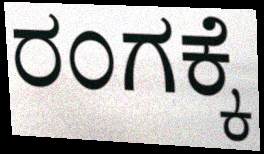
ರಂಗಕ್ಕೆ